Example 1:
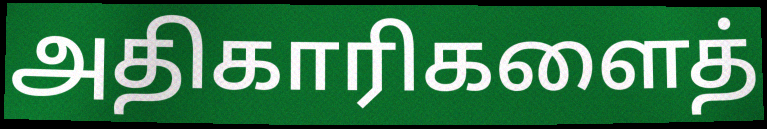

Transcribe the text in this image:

அதிகாரிகளைத்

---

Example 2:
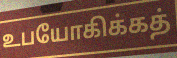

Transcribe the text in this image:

உபயோகிக்கத்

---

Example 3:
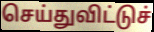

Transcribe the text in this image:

செய்துவிட்டுச்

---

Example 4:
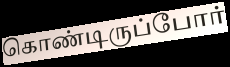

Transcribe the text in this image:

கொண்டிருப்போர்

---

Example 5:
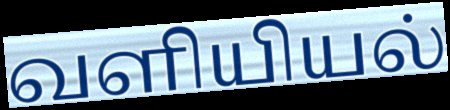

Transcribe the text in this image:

வளியியல்